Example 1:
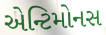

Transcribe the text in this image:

એન્ટિમોનસ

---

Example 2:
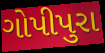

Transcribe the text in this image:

ગોપીપુરા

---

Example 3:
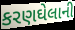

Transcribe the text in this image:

કરણઘેલાની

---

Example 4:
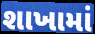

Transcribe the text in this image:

શાખામાં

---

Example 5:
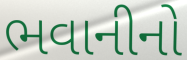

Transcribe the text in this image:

ભવાનીનો